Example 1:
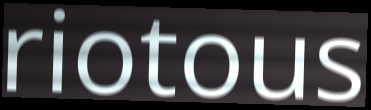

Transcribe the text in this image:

riotous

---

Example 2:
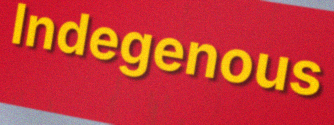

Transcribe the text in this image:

Indegenous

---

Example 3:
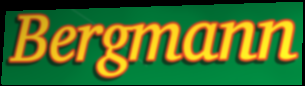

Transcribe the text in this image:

Bergmann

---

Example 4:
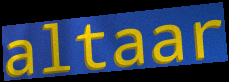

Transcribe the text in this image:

altaar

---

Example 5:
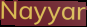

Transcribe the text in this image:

Nayyar